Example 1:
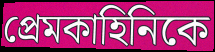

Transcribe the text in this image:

প্রেমকাহিনিকে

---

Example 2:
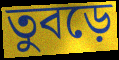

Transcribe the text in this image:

তুবড়ে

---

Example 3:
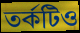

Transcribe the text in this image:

তর্কটিও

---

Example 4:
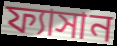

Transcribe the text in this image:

ফ্যাসান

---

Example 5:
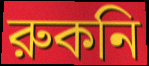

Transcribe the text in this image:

রুকনি